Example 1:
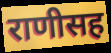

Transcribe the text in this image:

राणीसह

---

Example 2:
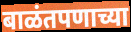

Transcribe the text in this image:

बाळंतपणाच्या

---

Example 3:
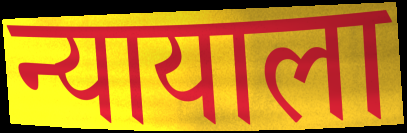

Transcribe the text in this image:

न्यायाला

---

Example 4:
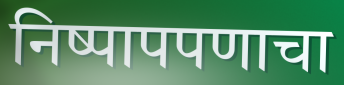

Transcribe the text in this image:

निष्पापपणाचा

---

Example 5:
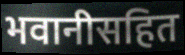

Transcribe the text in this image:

भवानीसहित